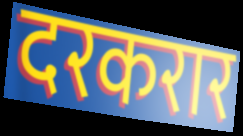
दरकरार